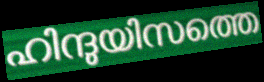
ഹിന്ദുയിസത്തെ